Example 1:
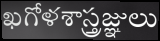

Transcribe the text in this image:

ఖగోళశాస్త్రజ్ఞులు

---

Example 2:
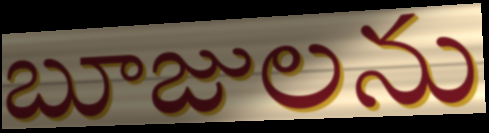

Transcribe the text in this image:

బూజులను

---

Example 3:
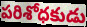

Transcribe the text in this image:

పరిశోధకుడు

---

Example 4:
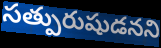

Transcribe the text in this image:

సత్పురుషుడనని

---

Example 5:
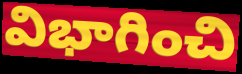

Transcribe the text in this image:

విభాగించి